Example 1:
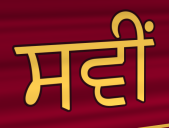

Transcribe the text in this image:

ਸਵੀਂ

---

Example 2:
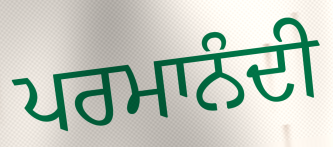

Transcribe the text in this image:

ਪਰਮਾਨੰਦੀ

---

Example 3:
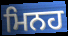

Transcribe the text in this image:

ਮਿਨਹ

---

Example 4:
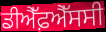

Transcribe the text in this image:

ਡੀਐੱਫ਼ਐੱਸਸੀ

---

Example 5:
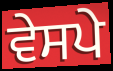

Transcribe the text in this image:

ਵੇਸਪੇ